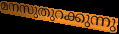
മനസുതുറക്കുന്നു